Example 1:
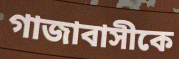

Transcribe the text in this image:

গাজাবাসীকে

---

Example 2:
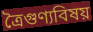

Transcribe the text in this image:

ত্রৈগুণ্যবিষয়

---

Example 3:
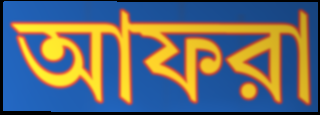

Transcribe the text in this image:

আফরা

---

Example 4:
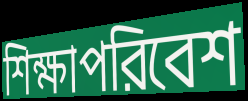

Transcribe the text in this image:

শিক্ষাপরিবেশ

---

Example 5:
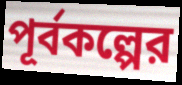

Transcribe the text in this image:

পূর্বকল্পের